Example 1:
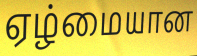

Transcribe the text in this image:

ஏழ்மையான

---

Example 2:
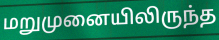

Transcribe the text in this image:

மறுமுனையிலிருந்த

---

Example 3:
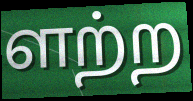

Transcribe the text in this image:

ளற்ற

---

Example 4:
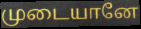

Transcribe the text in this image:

முடையானே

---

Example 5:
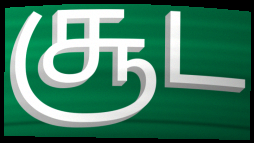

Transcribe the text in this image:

சூட